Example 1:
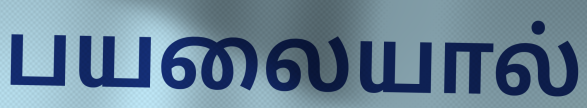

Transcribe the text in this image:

பயலையால்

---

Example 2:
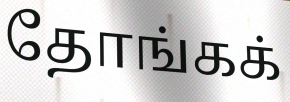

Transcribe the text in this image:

தோங்கக்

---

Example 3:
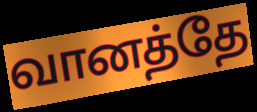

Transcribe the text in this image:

வானத்தே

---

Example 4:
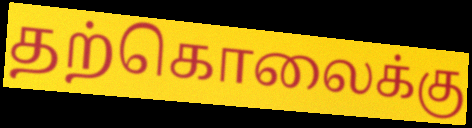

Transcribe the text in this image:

தற்கொலைக்கு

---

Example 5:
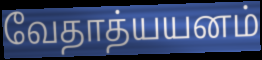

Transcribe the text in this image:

வேதாத்யயனம்